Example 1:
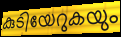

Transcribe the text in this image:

കുടിയേറുകയും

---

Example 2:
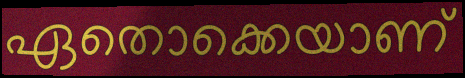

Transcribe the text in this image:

ഏതൊക്കെയാണ്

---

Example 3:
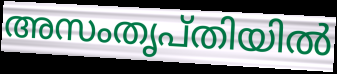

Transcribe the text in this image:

അസംതൃപ്തിയിൽ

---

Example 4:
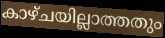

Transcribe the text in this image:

കാഴ്ചയില്ലാത്തതും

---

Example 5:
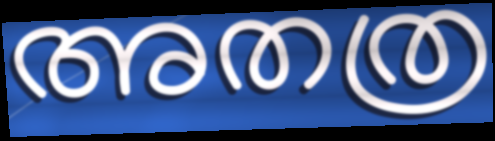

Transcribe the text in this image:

അതത്ര